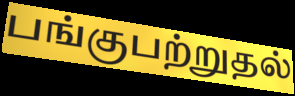
பங்குபற்றுதல்